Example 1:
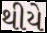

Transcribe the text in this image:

થીયે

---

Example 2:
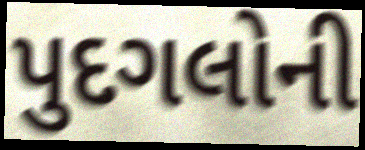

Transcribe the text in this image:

પુદગલોની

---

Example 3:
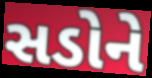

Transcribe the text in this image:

સડોને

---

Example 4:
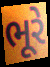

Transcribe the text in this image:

ભૂરે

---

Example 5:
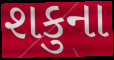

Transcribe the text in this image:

શકુના